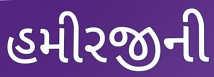
હમીરજીની